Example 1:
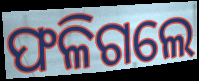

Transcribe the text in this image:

ଫଳିଗଲେ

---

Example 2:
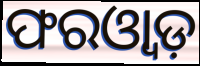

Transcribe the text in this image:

ଫରଓ୍ୱାଡ଼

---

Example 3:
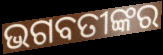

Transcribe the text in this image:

ଭଗବତୀଙ୍କର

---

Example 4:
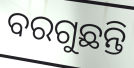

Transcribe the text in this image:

ବରଗୁଛନ୍ତି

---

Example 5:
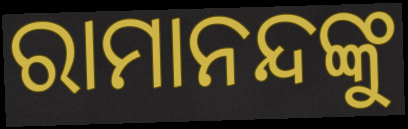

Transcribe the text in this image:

ରାମାନନ୍ଦଙ୍କୁ